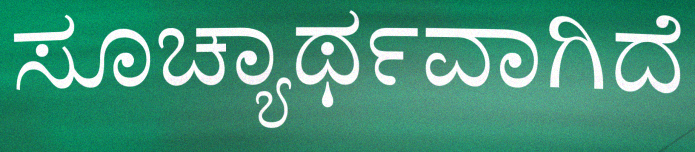
ಸೂಚ್ಯಾರ್ಥವಾಗಿದೆ